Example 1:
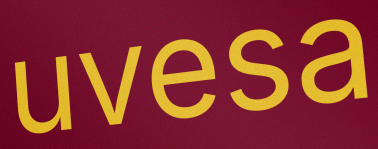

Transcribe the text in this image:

uvesa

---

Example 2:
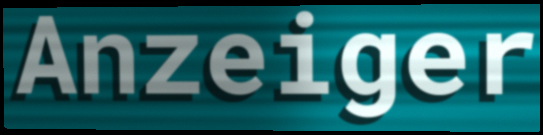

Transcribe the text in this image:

Anzeiger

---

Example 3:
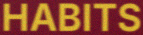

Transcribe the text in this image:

HABITS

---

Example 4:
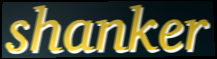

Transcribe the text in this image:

shanker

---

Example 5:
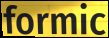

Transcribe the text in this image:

formic